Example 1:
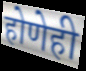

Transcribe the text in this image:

होणेही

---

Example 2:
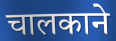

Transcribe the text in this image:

चालकाने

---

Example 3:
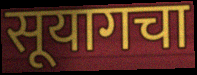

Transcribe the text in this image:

सूयागचा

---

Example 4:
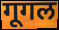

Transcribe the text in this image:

गूगल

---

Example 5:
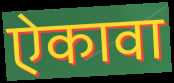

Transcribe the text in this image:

ऐकावा